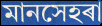
মানসেহৰা